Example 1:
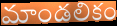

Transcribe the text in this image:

మాండలికం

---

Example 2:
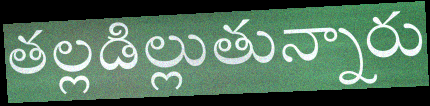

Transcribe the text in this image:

తల్లడిల్లుతున్నారు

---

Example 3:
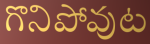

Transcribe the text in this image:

గొనిపోవుట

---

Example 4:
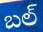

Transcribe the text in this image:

బల్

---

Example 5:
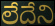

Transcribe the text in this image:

లేదేని